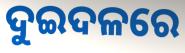
ଦୁଇଦଳରେ